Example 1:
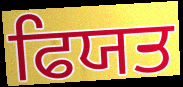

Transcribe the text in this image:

ਫਿਯਤ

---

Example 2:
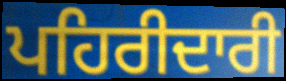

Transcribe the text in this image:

ਪਹਿਰੀਦਾਰੀ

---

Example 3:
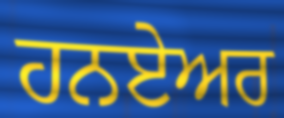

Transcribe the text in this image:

ਹਨਏਅਰ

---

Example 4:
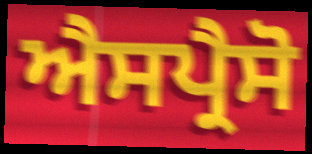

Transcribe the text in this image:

ਐਸਪ੍ਰੈਸੋ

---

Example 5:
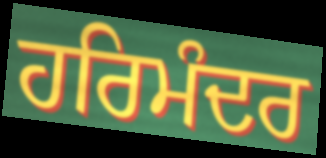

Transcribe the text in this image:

ਹਰਿਮੰਦਰ